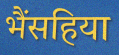
भैंसहिया